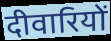
दीवारियों